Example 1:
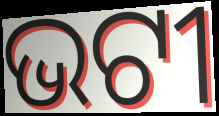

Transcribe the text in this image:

ଭଟୀ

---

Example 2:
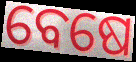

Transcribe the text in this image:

ବେଷେ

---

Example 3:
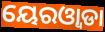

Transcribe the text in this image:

ୟେରଓ୍ୱାଡା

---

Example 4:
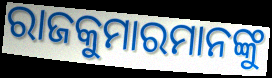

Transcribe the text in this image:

ରାଜକୁମାରମାନଙ୍କୁ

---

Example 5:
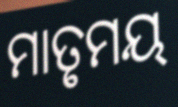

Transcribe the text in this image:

ମାତୃମୟ